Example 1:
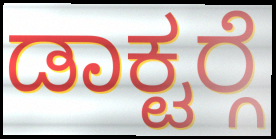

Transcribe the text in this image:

ಡಾಕ್ಟರ್‍ಗೆ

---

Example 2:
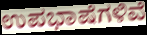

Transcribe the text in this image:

ಉಪಭಾಷೆಗಳಿವೆ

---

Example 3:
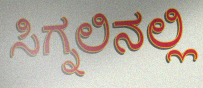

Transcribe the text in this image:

ಸಿಗ್ನಲಿನಲ್ಲಿ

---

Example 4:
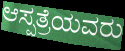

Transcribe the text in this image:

ಆಸ್ಪತ್ರೆಯವರು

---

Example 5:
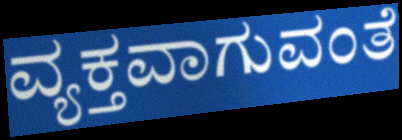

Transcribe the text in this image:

ವ್ಯಕ್ತವಾಗುವಂತೆ